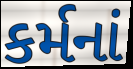
કર્મનાં